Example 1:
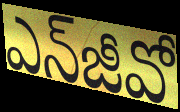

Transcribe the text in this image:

ఎన్‌జీవో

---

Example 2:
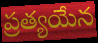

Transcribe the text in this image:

ప్రత్యయేన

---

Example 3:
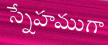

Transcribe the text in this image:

స్నేహముగా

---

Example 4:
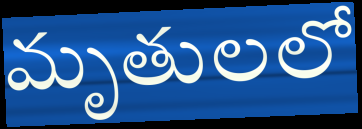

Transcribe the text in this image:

మృతులలో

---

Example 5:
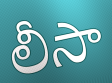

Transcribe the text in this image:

లీసా